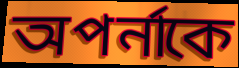
অপর্নাকে